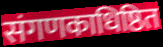
संगणकाधिष्ठित